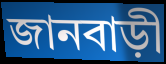
জানবাড়ী